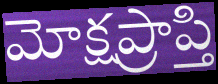
మోక్షప్రాప్తి